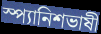
স্প্যানিশভাষী